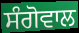
ਸੰਗੋਵਾਲ